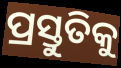
ପ୍ରସ୍ତୁତିକୁ